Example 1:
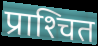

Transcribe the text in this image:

प्राश्चित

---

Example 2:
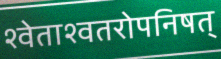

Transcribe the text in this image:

श्वेताश्वतरोपनिषत्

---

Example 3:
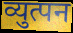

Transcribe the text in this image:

व्युत्पन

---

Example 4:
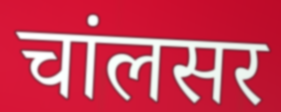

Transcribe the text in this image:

चांलसर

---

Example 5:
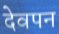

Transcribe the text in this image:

देवपन